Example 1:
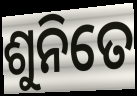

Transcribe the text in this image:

ଶୁନିତେ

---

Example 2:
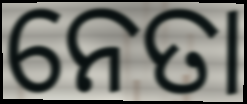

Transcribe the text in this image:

ନେତା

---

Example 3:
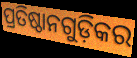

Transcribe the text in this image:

ପ୍ରତିଷ୍ଠାନଗୁଡ଼ିକର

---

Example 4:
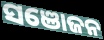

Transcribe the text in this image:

ସଞୋଜନ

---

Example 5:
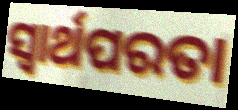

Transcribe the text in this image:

ସ୍ବାର୍ଥପରତା